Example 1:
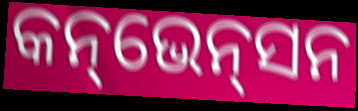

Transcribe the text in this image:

କନ୍‌ଭେନ୍‌ସନ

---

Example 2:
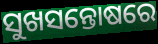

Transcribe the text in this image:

ସୁଖସନ୍ତୋଷରେ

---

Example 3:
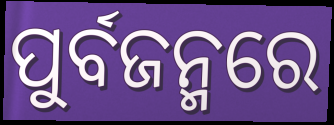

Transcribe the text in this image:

ପୁର୍ବଜନ୍ମରେ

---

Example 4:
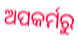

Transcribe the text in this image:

ଅପକର୍ମରୁ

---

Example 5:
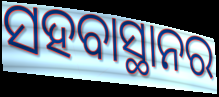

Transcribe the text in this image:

ସହବାସ୍ଥାନର